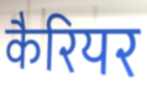
कैरियर